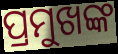
ପ୍ରମୁଖଙ୍କ